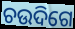
ଚଉଦିଗେ